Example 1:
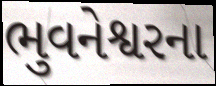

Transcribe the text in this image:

ભુવનેશ્વરના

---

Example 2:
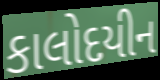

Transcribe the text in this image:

કાલોદયીન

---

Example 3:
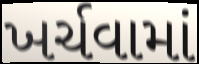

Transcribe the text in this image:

ખર્ચવામાં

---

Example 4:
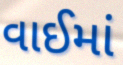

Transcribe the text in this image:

વાઈમાં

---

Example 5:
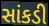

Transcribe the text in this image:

સાંકડી